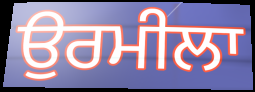
ਉਰਮੀਲਾ